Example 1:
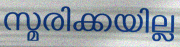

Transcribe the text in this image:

സ്മരിക്കയില്ല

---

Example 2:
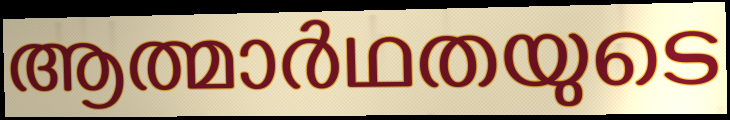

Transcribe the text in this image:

ആത്മാർഥതയുടെ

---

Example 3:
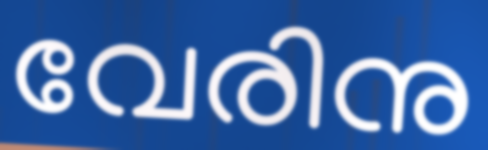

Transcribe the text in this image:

വേരിനു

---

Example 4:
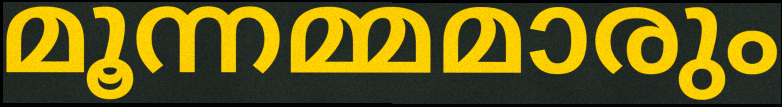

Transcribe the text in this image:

മൂന്നമ്മമാരും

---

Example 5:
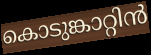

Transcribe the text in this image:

കൊടുങ്കാറ്റിൻ